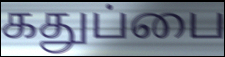
கதுப்பை